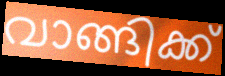
വാങ്ങിക്ക്